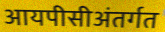
आयपीसीअंतर्गत